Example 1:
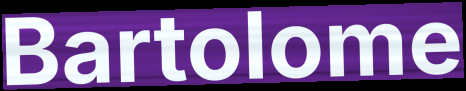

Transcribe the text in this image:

Bartolome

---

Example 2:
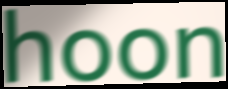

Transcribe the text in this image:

hoon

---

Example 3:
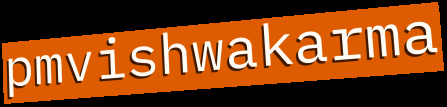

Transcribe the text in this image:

pmvishwakarma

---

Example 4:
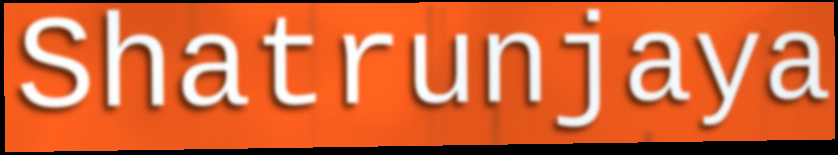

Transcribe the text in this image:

Shatrunjaya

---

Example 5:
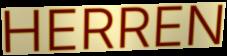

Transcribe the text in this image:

HERREN